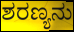
ಶರಣ್ಯನು